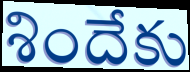
శిందేకు